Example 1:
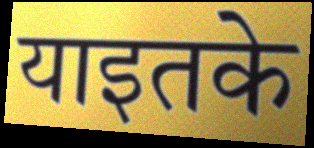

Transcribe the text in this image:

याइतके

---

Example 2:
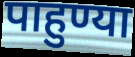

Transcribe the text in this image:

पाहुण्या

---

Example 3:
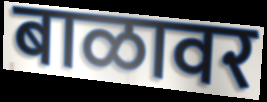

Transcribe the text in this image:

बाळावर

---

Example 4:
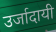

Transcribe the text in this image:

उर्जादायी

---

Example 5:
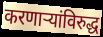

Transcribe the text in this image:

करणाऱ्यांविरुद्ध